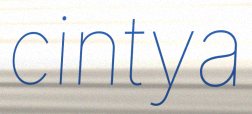
cintya